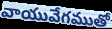
వాయువేగముతో